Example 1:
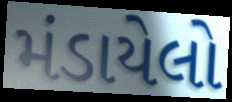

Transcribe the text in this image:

મંડાયેલો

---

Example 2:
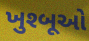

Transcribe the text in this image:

ખુશ્બૂઓ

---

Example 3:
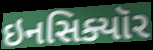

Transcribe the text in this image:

ઇનસિક્યૉર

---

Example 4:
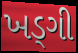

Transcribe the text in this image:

ખડ્ગી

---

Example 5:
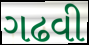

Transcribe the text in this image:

ગઢવી